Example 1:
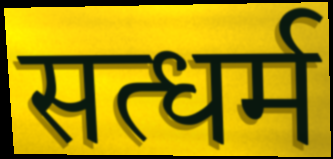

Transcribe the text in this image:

सत्धर्म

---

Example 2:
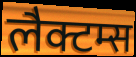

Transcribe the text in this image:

लैक्टम्स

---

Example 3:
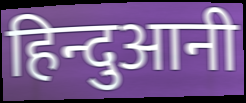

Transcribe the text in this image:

हिन्दुआनी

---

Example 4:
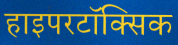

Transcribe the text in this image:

हाइपरटॉक्सिक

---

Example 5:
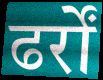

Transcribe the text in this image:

ढर्रों